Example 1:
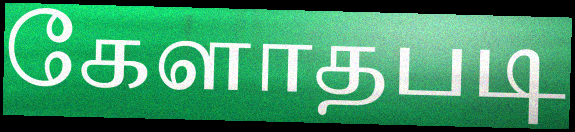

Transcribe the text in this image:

கேளாதபடி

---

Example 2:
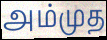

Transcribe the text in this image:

அம்முத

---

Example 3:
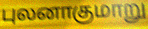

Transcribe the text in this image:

புலனாகுமாறு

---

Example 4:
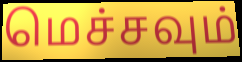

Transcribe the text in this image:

மெச்சவும்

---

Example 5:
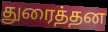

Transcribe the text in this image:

துரைத்தன